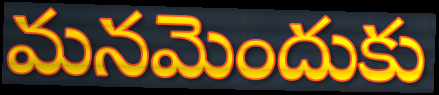
మనమెందుకు